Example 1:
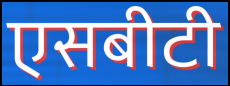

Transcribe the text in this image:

एसबीटी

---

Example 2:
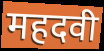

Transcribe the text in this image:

महदवी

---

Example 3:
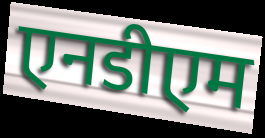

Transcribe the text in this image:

एनडीएम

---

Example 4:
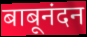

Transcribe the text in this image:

बाबूनंदन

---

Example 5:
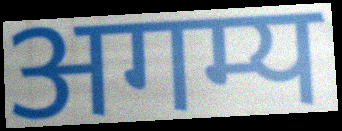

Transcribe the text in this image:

अगम्य